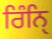
ਰਿੰਨਿੑ